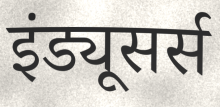
इंड्यूसर्स